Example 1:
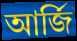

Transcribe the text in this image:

আৰ্জি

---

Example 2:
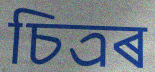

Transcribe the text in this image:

চিত্ৰৰ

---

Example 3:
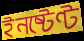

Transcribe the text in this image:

ইনষ্টেণ্ট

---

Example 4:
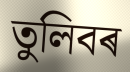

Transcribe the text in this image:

তুলিবৰ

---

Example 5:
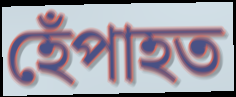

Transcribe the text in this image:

হেঁপাহত